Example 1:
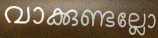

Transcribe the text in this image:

വാക്കുണ്ടല്ലോ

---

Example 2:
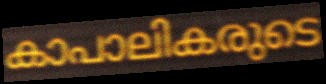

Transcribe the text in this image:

കാപാലികരുടെ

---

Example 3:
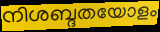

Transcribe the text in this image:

നിശബ്ദതയോളം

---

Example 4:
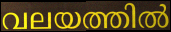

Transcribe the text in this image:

വലയത്തിൽ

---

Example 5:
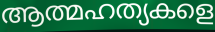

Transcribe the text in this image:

ആത്മഹത്യകളെ